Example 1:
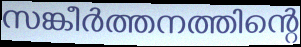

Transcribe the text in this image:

സങ്കീർത്തനത്തിന്റെ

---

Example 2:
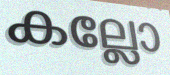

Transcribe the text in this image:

കല്ലോ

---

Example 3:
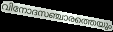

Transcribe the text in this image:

വിനോദസഞ്ചാരത്തെയും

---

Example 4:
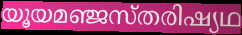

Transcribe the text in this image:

യൂയമഞ്ജസ്തരിഷ്യഥ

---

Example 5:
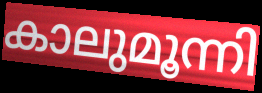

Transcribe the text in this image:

കാലുമൂന്നി